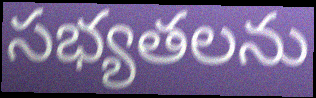
సభ్యతలను